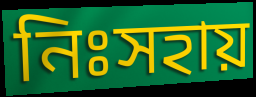
নিঃসহায়